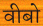
वीबो